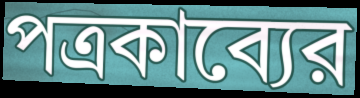
পত্রকাব্যের